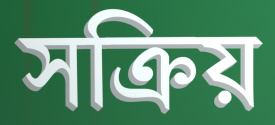
সক্ৰিয়